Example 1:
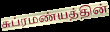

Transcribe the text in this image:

சுப்ரமண்யத்தின்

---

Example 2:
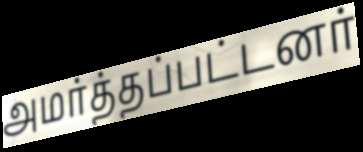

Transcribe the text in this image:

அமர்த்தப்பட்டனர்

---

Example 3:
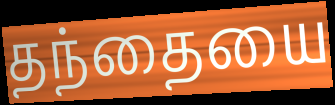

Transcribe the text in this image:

தந்தையை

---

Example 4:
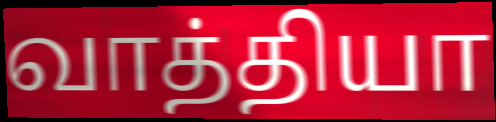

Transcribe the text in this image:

வாத்தியா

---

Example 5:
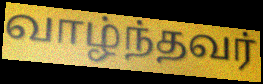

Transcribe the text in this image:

வாழ்ந்தவர்